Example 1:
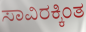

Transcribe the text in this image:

ಸಾವಿರಕ್ಕಿಂತ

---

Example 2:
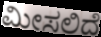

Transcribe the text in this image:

ಮೀಸಲಿದೆ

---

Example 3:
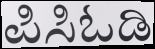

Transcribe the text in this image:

ಪಿಸಿಓಡಿ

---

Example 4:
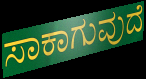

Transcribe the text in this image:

ಸಾಕಾಗುವುದೆ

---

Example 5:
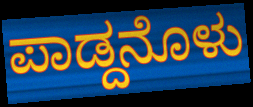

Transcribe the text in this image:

ಪಾಡ್ದನೊಳು